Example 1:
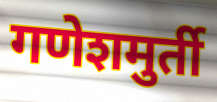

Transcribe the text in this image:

गणेशमुर्ती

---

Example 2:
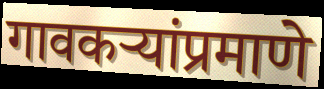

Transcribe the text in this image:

गावकऱ्यांप्रमाणे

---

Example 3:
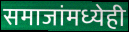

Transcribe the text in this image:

समाजांमध्येही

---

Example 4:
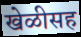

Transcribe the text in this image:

खेळीसह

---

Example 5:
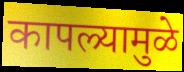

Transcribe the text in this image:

कापल्यामुळे